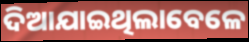
ଦିଆଯାଇଥିଲାବେଳେ